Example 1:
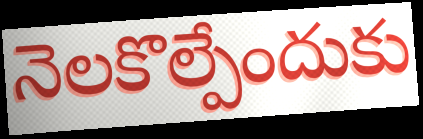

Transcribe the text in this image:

నెలకొల్పేందుకు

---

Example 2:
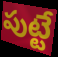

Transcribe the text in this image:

పుట్టే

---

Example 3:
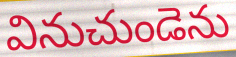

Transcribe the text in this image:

వినుచుండెను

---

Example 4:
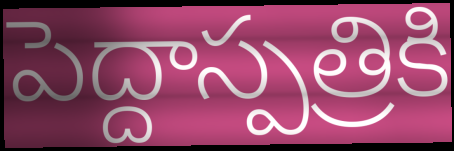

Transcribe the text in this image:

పెద్దాస్పత్రికి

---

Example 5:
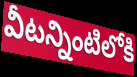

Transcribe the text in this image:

వీటన్నింటిలోకి